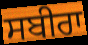
ਸਬੀਰਾ